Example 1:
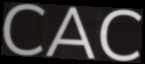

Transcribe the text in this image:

CAC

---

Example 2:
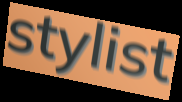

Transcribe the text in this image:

stylist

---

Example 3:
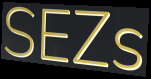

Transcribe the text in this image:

SEZs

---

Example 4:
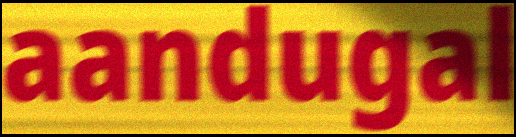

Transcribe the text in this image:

aandugal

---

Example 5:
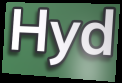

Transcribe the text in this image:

Hyd